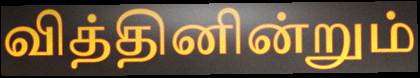
வித்தினின்றும்